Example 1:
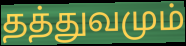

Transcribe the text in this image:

தத்துவமும்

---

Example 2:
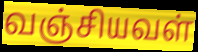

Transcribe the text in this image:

வஞ்சியவள்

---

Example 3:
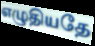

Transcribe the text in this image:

எழுதியதே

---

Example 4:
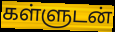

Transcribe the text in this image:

கள்ளுடன்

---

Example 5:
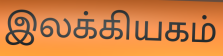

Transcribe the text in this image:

இலக்கியகம்